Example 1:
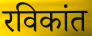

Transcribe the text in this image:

रविकांत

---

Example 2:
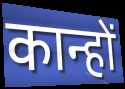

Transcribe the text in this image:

कान्हों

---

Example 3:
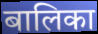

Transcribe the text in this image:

बालिका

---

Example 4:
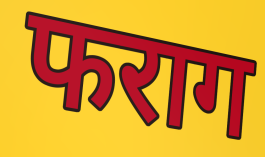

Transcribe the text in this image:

फराग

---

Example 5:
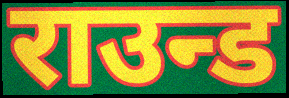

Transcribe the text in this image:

राउन्ड